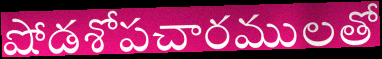
షోడశోపచారములతో